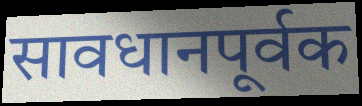
सावधानपूर्वक